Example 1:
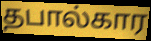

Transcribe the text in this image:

தபால்கார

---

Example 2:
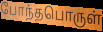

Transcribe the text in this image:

போந்தபொருள்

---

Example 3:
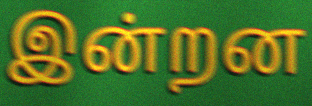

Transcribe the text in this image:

இன்றன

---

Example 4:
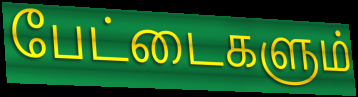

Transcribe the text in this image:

பேட்டைகளும்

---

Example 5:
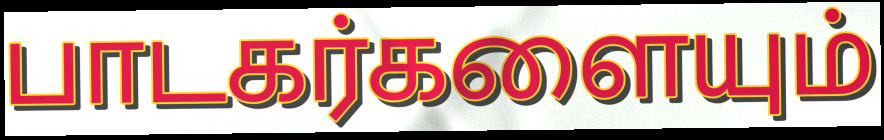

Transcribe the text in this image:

பாடகர்களையும்